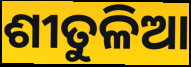
ଶୀତୁଳିଆ